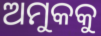
ଅମୁକକୁ